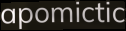
apomictic